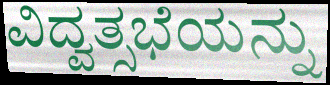
ವಿದ್ವತ್ಸಭೆಯನ್ನು